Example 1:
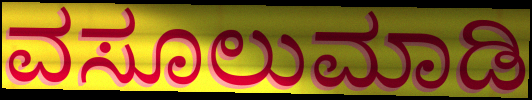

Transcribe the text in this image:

ವಸೂಲುಮಾಡಿ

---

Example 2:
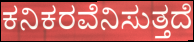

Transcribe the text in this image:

ಕನಿಕರವೆನಿಸುತ್ತದೆ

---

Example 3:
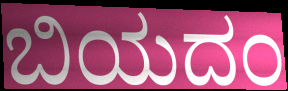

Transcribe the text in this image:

ಬಿಯದಂ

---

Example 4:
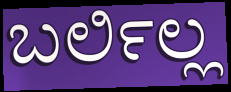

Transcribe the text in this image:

ಬರ್ಲಿಲ್ಲ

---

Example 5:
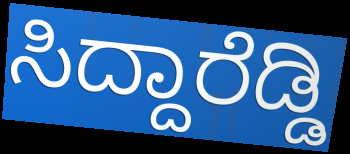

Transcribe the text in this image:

ಸಿದ್ದಾರೆಡ್ಡಿ